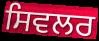
ਸਿਵਲਰ